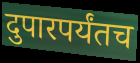
दुपारपर्यंतच